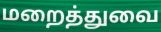
மறைத்துவை